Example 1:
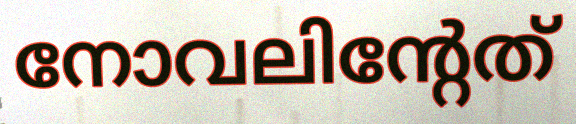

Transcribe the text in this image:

നോവലിന്റേത്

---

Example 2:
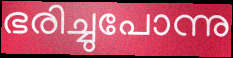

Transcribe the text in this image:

ഭരിച്ചുപോന്നു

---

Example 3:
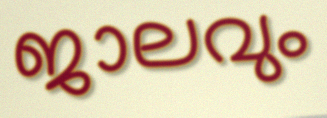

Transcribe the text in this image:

ജാലവും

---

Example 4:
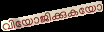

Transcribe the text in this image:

വിയോജിക്കുകയോ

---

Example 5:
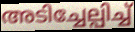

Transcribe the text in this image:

അടിച്ചേല്പിച്ച്